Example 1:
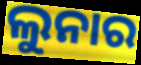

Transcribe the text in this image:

ଲୁନାର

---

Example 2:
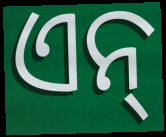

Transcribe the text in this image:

ଏନ୍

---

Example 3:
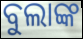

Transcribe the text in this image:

ବୁଲାଙ୍କ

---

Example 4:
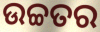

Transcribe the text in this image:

ଉଚ୍ଚତର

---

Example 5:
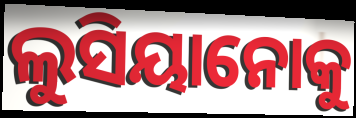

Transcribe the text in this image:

ଲୁସିୟାନୋକୁ